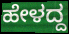
ಹೇಳದ್ದ